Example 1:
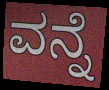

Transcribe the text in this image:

ವನ್ನೆ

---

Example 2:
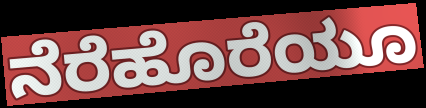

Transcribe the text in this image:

ನೆರೆಹೊರೆಯೂ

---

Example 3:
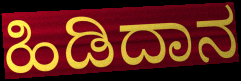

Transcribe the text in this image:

ಹಿಡಿದಾನ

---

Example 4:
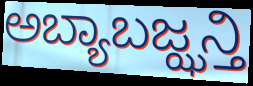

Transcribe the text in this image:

ಅಬ್ಯಾಬಜ್ಝನ್ತಿ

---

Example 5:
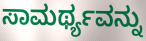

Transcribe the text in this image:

ಸಾಮರ್ಥ್ಯವನ್ನು